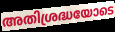
അതിശ്രദ്ധയോടെ